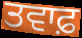
ਤਵਾਫ਼